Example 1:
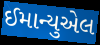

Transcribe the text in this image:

ઈમાન્યુએલ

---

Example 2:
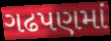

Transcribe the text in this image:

ગઢપણમાં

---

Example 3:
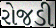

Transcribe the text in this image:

રોજડી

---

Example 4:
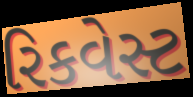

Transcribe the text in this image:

રિકવેસ્ટ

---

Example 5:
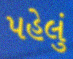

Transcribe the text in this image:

પહેલું